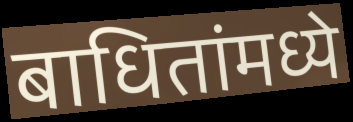
बाधितांमध्ये